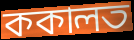
ককালত